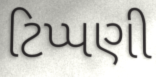
ટિપ્પણી